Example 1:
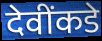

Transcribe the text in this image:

देवींकडे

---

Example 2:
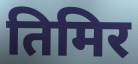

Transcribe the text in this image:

तिमिर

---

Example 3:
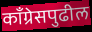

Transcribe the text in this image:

काँग्रेसपुढील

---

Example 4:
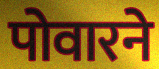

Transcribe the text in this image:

पोवारने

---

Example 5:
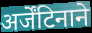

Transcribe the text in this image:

अर्जेंटिनाने